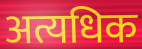
अत्यधिक